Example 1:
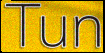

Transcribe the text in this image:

Tun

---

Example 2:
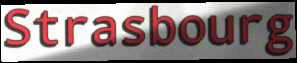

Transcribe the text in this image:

Strasbourg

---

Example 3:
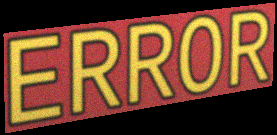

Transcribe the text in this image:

ERROR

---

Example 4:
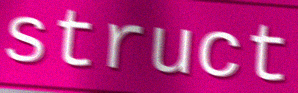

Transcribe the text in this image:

struct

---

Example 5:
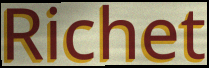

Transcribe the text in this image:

Richet